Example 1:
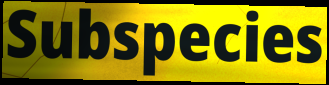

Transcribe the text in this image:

Subspecies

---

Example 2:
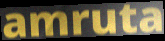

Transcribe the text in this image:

amruta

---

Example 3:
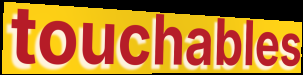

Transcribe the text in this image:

touchables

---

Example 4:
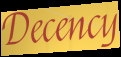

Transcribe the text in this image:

Decency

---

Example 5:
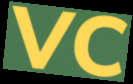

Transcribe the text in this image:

VC